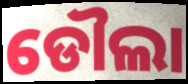
ଡୌଲା